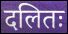
दलितः